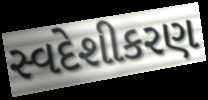
સ્વદેશીકરણ